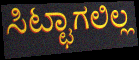
ಸಿಟ್ಟಾಗಲಿಲ್ಲ